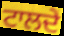
ਟਾਲਦੇ